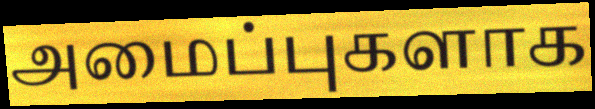
அமைப்புகளாக